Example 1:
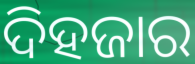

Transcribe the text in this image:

ଦିହଜାର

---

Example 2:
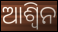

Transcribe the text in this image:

ଆଶ୍ୱିନ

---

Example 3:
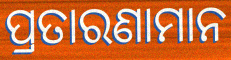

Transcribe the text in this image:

ପ୍ରତାରଣାମାନ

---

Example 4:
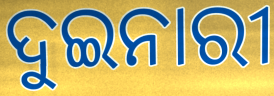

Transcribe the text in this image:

ଦୁଇନାରୀ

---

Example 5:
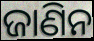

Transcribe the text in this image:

ଜାଣିନ